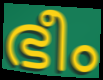
ഭീം